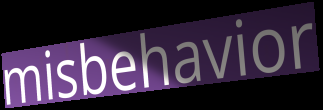
misbehavior